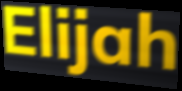
Elijah